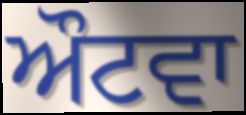
ਔਟਵਾ